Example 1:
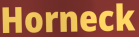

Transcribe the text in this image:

Horneck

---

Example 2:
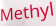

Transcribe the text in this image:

Methyl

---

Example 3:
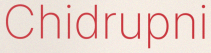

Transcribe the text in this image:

Chidrupni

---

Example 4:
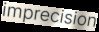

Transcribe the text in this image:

imprecision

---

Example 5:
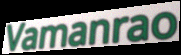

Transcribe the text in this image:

Vamanrao